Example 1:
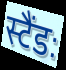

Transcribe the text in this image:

स्टैंडः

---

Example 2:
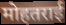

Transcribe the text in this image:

मोहतराई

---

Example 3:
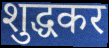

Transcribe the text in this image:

शुद्धकर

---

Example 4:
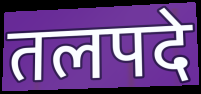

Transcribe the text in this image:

तलपदे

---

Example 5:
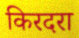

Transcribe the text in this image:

किरदरा